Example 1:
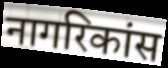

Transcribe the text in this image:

नागरिकांस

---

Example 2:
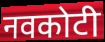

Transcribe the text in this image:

नवकोटी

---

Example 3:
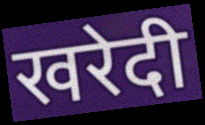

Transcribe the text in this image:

खरेदी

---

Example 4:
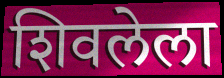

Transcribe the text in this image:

शिवलेला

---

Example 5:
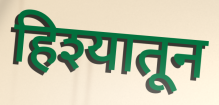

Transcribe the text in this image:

हिश्यातून